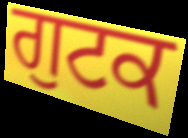
ਗੁਟਕ